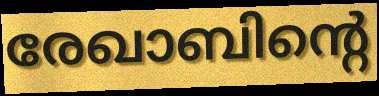
രേഖാബിന്റെ